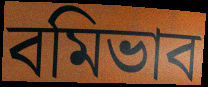
বমিভাব